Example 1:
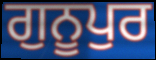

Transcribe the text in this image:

ਗੁਨੂਪੁਰ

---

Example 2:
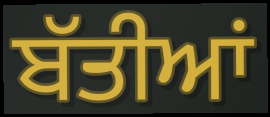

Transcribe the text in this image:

ਬੱਤੀਆਂ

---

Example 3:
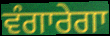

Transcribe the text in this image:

ਵੰਗਾਰੇਗਾ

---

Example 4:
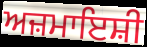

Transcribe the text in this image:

ਅਜ਼ਮਾਇਸ਼ੀ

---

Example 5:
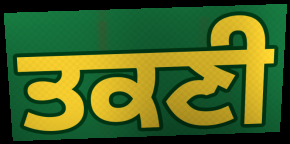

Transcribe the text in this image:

ਤਕਣੀ